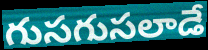
గుసగుసలాడే